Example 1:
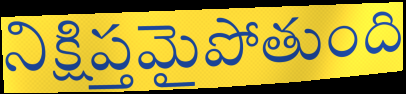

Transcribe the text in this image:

నిక్షిప్తమైపోతుంది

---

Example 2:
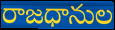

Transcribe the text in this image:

రాజధానుల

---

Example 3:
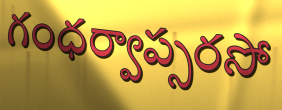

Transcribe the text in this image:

గంధర్వాప్సరసో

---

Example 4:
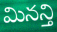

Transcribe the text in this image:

మినన్తి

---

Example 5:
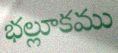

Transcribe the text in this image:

భల్లూకము